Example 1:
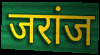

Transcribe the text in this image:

जरांज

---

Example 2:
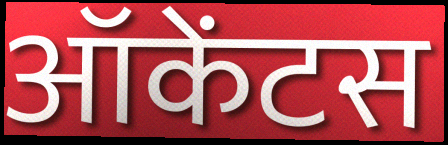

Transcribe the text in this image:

ऑकेंटस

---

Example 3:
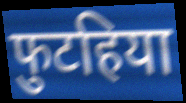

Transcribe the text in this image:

फुटहिया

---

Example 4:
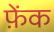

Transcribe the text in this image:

फ़ेंक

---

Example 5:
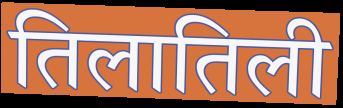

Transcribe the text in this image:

तिलातिली